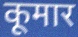
कूमार